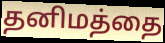
தனிமத்தை